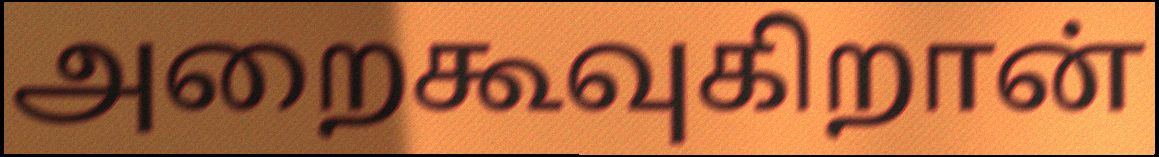
அறைகூவுகிறான்